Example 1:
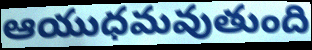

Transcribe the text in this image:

ఆయుధమవుతుంది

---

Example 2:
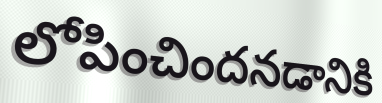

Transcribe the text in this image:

లోపించిందనడానికి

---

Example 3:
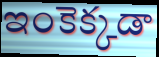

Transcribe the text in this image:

ఇంకెక్కడా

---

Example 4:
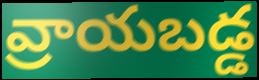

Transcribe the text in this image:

వ్రాయబడ్డ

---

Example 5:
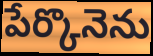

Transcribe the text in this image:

పేర్కొనెను